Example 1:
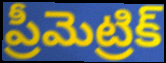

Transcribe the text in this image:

ప్రీమెట్రిక్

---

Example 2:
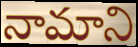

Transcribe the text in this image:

నామాని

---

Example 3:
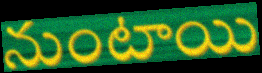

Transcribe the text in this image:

నుంటాయి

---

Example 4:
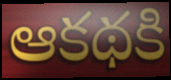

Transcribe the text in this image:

ఆకథకి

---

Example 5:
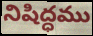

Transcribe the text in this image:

నిషిద్ధము